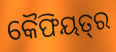
କୈଫିୟତ୍‌ର